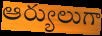
ఆర్యులుగా